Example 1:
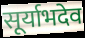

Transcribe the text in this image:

सूर्याभदेव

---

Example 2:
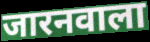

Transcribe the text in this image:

जारनवाला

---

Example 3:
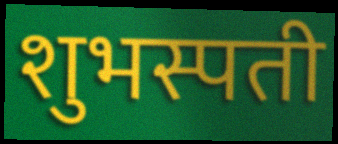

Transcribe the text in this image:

शुभस्पती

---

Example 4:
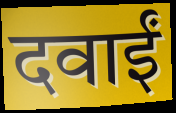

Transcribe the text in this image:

दवाईं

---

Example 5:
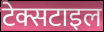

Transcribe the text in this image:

टेक्सटाइल